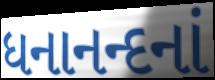
ધનાનન્દનાં